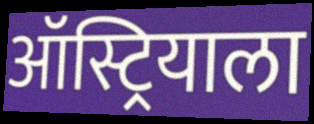
ऑस्ट्रियाला